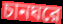
চানঘরে